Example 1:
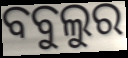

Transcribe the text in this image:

ବବୁଲୁର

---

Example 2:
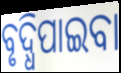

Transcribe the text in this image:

ବୃଦ୍ଧିପାଇବା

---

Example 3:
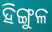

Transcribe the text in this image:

ହିଙ୍ଗୁଳ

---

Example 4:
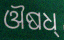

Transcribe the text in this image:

ଔଷଧ୍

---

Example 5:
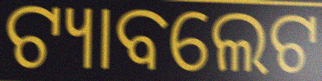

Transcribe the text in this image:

ଟ୍ୟାବଲେଟ